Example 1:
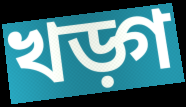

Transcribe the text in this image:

খড়্গ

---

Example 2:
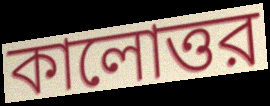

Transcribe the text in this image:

কালোত্তর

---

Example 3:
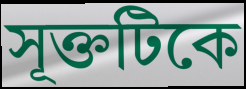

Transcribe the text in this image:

সূক্তটিকে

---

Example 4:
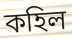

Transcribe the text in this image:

কহিল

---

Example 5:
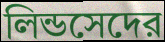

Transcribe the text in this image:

লিন্ডসেদের